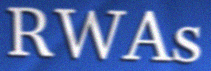
RWAs